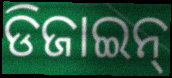
ଡିଜାଇନ୍